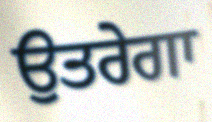
ਉਤਰੇਗਾ